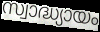
സ്വാദ്ധ്യായം